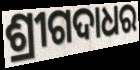
ଶ୍ରୀଗଦାଧର